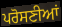
ਪਰੋਸਣੀਆਂ